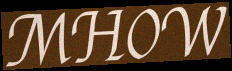
MHOW